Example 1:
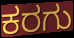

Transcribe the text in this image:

ಕರಗು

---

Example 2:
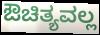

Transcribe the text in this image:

ಔಚಿತ್ಯವಲ್ಲ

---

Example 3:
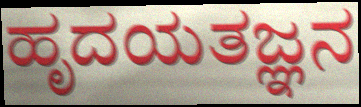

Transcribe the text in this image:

ಹೃದಯತಜ್ಞನ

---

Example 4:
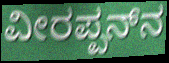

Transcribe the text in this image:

ವೀರಪ್ಪನ್‍ನ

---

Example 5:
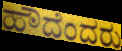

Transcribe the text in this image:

ಹೌದೆಂದರು